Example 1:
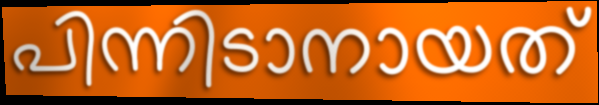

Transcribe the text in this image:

പിന്നിടാനായത്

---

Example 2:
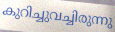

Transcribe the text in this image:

കുറിച്ചുവച്ചിരുന്നു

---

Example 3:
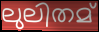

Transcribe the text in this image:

ലുലിതമ്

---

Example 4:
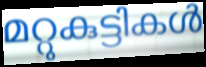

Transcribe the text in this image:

മറ്റുകുട്ടികൾ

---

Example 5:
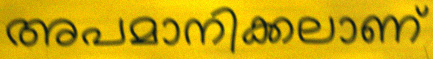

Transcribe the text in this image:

അപമാനിക്കലാണ്